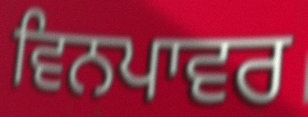
ਵਿਨਪਾਵਰ